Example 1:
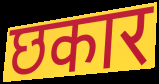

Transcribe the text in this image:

छकार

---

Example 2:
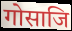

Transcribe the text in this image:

गोसाजि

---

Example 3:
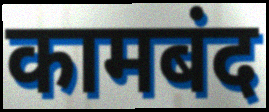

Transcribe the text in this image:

कामबंद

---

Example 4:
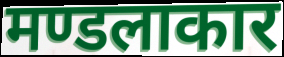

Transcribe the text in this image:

मण्डलाकार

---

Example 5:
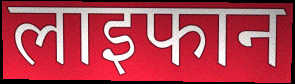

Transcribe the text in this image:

लाइफान